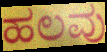
ಹಲವು